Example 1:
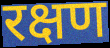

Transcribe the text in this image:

रक्षण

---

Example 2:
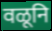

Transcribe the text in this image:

वळूनि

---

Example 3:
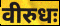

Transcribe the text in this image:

वीरुधः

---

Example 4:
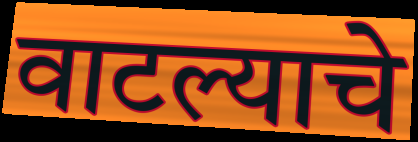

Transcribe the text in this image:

वाटल्याचे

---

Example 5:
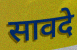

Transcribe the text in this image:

सावदे